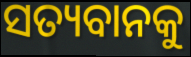
ସତ୍ୟବାନକୁ